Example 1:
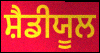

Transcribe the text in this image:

ਸ਼ੈਡੀਯੂਲ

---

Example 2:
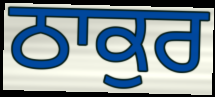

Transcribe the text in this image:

ਠਾਕੁਰ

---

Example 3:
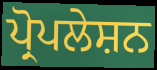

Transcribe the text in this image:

ਪ੍ਰੋਪਲੇਸ਼ਨ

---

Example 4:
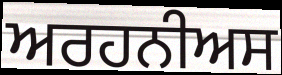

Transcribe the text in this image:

ਅਰਹਨੀਅਸ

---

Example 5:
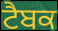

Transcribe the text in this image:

ਟੈਬਕ